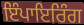
ਇੰਪਾਇਰਿੰਗ